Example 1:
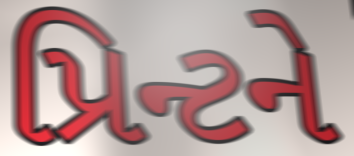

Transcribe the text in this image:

પ્રિન્ટને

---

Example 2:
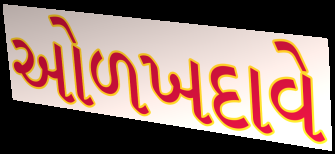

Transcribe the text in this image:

ઓળખદાવે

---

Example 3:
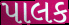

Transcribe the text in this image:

પાલક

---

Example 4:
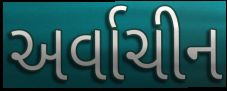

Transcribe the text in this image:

અર્વાચીન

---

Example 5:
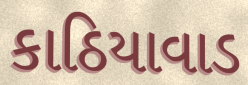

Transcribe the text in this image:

કાઠિયાવાડ